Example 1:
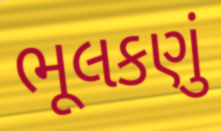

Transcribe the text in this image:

ભૂલકણું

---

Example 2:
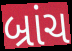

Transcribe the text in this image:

બ્રાંચ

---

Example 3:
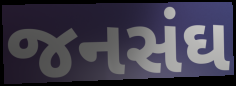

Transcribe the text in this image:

જનસંઘ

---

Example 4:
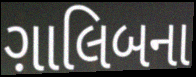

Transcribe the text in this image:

ગ઼ાલિબના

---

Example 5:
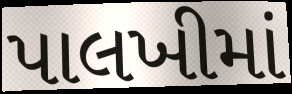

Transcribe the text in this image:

પાલખીમાં